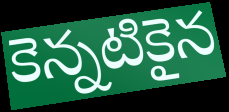
కెన్నటికైన